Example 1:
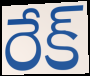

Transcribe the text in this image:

రేక్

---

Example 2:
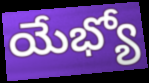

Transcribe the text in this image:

యేభ్యో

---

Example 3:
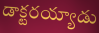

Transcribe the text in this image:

డాక్టరయ్యాడు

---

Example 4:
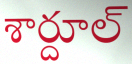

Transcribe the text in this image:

శార్దూల్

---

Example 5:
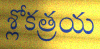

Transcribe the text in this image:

శ్లోకత్రయ